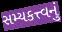
સમ્યકત્ત્વનું